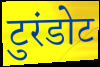
टुरंडोट